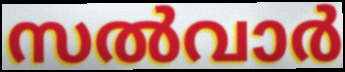
സൽവാർ